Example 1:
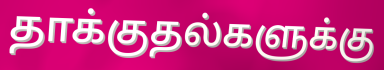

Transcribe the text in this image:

தாக்குதல்களுக்கு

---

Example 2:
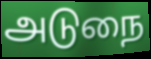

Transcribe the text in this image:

அடுநை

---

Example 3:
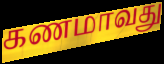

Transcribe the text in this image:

கணமாவது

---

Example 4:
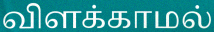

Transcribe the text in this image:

விளக்காமல்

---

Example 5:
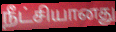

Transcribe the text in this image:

நீட்சியானது